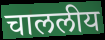
चाललीय